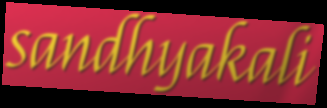
sandhyakali